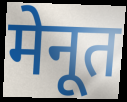
मेनूत